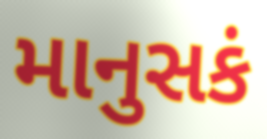
માનુસકં